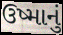
ઉષ્માનું